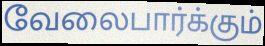
வேலைபார்க்கும்